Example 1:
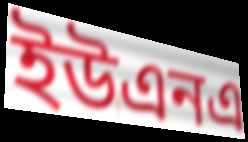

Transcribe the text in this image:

ইউএনএ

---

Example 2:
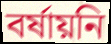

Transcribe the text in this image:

বর্ষায়নি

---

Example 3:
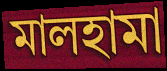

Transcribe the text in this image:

মালহামা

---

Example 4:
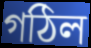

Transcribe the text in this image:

গঠিল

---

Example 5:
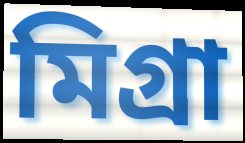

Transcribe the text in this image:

মিগ্রা